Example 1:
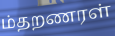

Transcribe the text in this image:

ம்தறணரள்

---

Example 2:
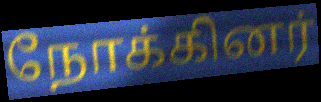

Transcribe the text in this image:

நோக்கினர்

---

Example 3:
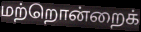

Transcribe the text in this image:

மற்றொன்றைக்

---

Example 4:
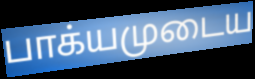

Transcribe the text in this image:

பாக்யமுடைய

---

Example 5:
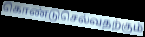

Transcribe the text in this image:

கொண்டுசெல்வதற்கும்